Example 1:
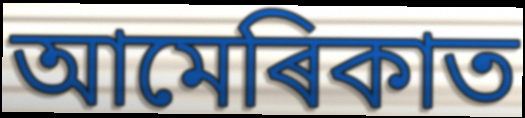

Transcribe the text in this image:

আমেৰিকাত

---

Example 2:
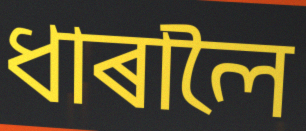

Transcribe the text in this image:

ধাৰালৈ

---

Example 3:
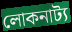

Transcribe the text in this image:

লোকনাট্য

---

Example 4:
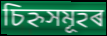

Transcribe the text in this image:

চিহ্নসমূহৰ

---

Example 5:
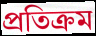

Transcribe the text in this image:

প্ৰতিক্ৰম